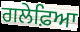
ਗਲੇਫ਼ਿਆ